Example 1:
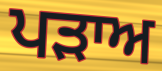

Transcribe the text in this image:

ਪਡ਼ਾਅ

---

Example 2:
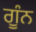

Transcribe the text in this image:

ਗੂੰਨ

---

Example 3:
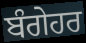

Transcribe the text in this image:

ਬੰਗੇਹਰ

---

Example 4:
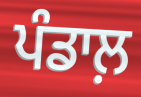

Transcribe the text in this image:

ਪੰਡਾਲ਼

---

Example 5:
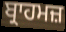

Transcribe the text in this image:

ਬ੍ਰਾਹਮਜ਼